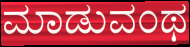
ಮಾಡುವಂಥ